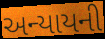
અન્યાયની